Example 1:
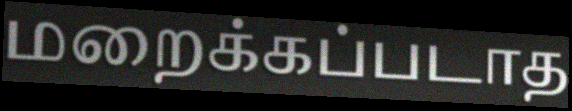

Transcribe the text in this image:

மறைக்கப்படாத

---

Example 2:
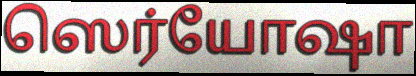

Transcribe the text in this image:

ஸெர்யோஷா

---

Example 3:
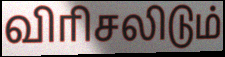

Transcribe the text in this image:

விரிசலிடும்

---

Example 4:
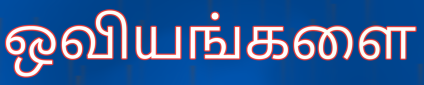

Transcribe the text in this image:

ஒவியங்களை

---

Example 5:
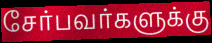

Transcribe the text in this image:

சேர்பவர்களுக்கு